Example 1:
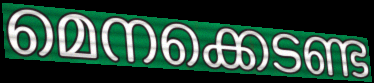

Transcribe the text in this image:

മെനക്കെടണ്ട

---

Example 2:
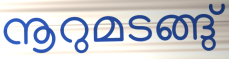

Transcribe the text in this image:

നൂറുമടങ്ങു്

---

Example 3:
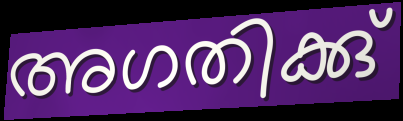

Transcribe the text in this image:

അഗതിക്കു്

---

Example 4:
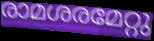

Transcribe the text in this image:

രാമശരമേറ്റു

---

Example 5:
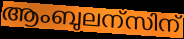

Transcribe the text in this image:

ആംബുലന്സിന്